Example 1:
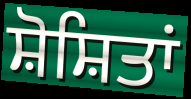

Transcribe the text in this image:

ਸ਼ੋਸ਼ਿਤਾਂ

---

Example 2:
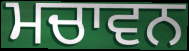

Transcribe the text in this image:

ਮਚਾਵਨ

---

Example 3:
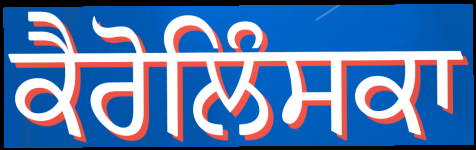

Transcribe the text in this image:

ਕੈਰੋਲਿੰਸਕਾ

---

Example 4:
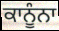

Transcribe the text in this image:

ਕਾਨੂੰਨਾ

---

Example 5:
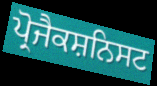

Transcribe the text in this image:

ਪ੍ਰੋਜੈਕਸ਼ਨਿਸਟ